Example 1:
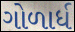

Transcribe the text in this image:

ગોળાર્ધ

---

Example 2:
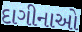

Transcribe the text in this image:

દાગીનાઓ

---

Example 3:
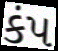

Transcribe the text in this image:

કંપ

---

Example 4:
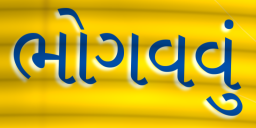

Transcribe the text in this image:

ભોગવવું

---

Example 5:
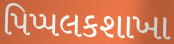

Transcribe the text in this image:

પિપ્પલકશાખા